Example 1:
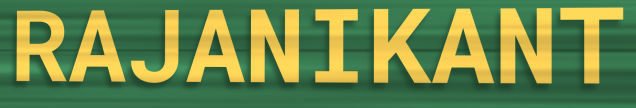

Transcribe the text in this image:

RAJANIKANT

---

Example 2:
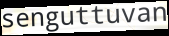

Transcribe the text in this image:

senguttuvan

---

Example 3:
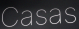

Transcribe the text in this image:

Casas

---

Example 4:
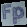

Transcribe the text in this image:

Fp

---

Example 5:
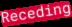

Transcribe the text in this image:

Receding